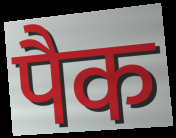
पैक